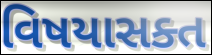
વિષયાસક્ત